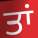
ਤਾਂ